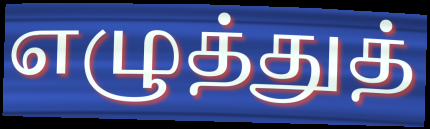
எழுத்துத்